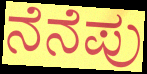
ನೆನೆಪು